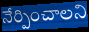
నేర్పించాలని